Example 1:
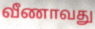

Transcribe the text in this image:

வீணாவது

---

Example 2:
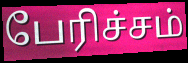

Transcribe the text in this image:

பேரிச்சம்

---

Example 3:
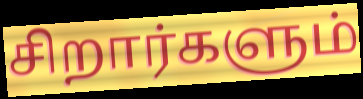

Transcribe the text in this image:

சிறார்களும்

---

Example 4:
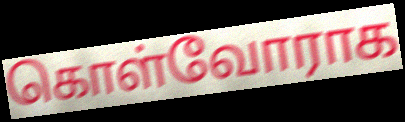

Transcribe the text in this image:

கொள்வோராக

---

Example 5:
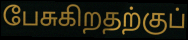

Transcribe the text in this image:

பேசுகிறதற்குப்